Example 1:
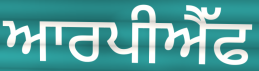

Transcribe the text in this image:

ਆਰਪੀਐੱਫ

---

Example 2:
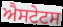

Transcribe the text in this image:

ਐਸਟੇਟਸ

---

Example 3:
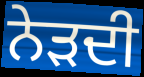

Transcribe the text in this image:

ਨੇੜਦੀ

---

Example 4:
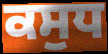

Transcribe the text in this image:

ਕਸੁਧ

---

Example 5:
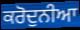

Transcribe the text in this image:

ਕਰੋਦੁਨੀਆ